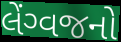
લેંગ્વજનો